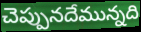
చెప్పునదేమున్నది